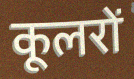
कूलरों